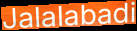
Jalalabadi